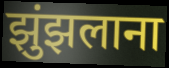
झुंझलाना